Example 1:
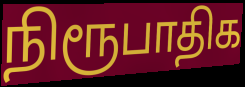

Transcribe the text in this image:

நிரூபாதிக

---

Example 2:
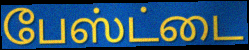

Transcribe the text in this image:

பேஸ்ட்டை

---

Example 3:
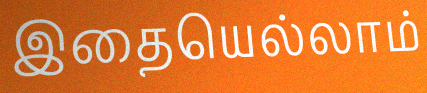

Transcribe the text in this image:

இதையெல்லாம்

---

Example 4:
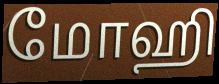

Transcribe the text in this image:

மோஹி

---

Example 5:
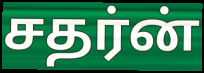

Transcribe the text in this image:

சதர்ன்